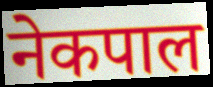
नेकपाल